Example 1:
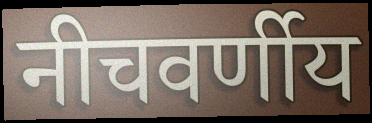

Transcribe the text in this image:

नीचवर्णीय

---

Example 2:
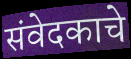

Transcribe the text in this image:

संवेदकाचे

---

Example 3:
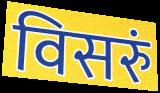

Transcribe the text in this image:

विसरुं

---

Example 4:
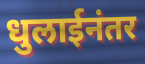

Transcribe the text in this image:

धुलाईनंतर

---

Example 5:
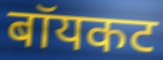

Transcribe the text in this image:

बॉयकट